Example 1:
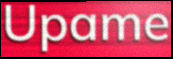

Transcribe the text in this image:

Upame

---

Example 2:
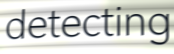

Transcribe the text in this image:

detecting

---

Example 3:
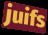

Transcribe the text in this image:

juifs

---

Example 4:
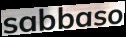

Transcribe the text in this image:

sabbaso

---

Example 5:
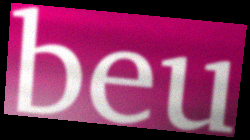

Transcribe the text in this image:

beu